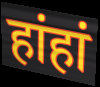
हांहां